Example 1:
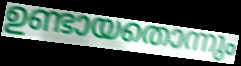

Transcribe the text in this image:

ഉണ്ടായതൊന്നും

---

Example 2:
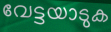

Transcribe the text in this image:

വേട്ടയാടുക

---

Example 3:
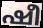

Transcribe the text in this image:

ഷീ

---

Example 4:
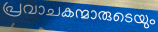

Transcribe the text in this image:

പ്രവാചകന്മാരുടെയും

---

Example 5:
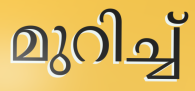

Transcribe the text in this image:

മുറിച്ച്